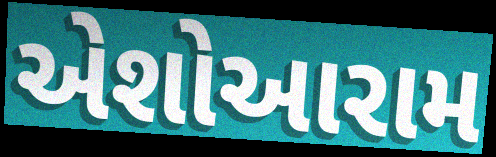
એશોઆરામ